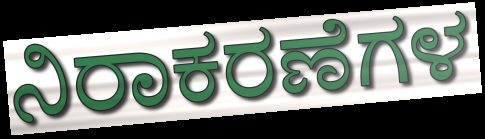
ನಿರಾಕರಣೆಗಳ